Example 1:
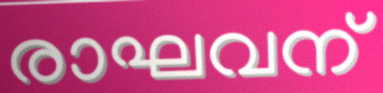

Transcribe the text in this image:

രാഘവന്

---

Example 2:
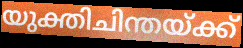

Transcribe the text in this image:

യുക്തിചിന്തയ്ക്ക്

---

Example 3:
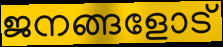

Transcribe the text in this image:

ജനങ്ങളോട്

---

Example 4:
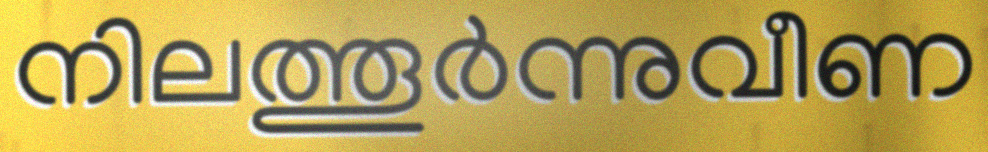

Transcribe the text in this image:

നിലത്തൂർന്നുവീണ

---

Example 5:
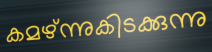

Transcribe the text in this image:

കമഴ്ന്നുകിടക്കുന്നു